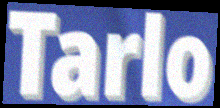
Tarlo